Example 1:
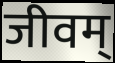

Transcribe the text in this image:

जीवम्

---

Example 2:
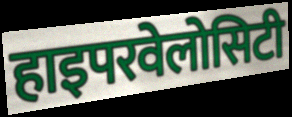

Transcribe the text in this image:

हाइपरवेलोसिटी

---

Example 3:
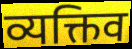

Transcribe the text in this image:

व्यक्तिव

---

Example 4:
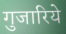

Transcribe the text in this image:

गुजारिये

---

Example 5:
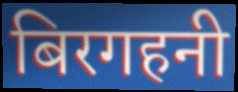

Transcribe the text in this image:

बिरगहनी